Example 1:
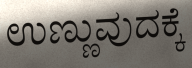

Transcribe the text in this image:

ಉಣ್ಣುವುದಕ್ಕೆ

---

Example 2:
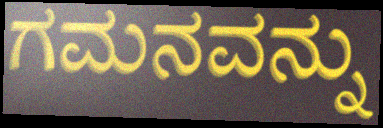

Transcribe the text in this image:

ಗಮನವನ್ನು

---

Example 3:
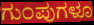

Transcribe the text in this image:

ಗುಂಪುಗಳೂ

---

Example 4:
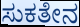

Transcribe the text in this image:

ಸುಕತೇನ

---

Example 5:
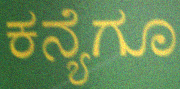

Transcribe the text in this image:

ಕನ್ಯೆಗೂ